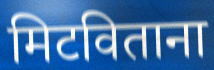
मिटविताना